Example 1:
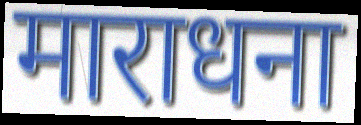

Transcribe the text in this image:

माराधना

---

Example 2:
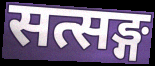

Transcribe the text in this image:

सत्सङ्ग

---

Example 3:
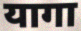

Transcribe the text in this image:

यागा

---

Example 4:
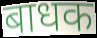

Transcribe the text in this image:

बाधक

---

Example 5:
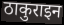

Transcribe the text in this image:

ठाकुराइन